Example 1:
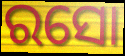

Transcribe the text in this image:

ରସୋ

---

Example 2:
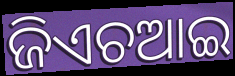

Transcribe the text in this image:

ଜିଏଚଆଇ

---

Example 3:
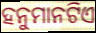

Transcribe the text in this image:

ହନୁମାନଟିଏ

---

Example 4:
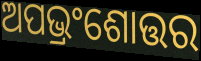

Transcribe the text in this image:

ଅପଭ୍ରଂଶୋତ୍ତର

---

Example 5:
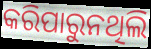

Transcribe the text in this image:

କରିପାରୁନଥିଲି